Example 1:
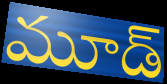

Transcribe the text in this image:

మూడ్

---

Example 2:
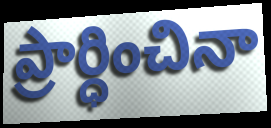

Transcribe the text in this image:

ప్రార్ధించినా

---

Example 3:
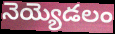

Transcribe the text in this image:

నెయ్యెడలం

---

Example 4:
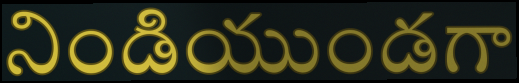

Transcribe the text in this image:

నిండియుండగా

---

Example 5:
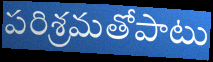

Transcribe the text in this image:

పరిశ్రమతోపాటు